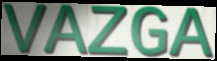
VAZGA